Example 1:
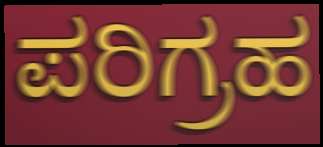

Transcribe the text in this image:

ಪರಿಗ್ರಹ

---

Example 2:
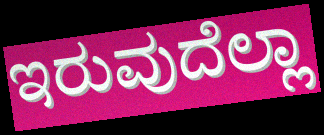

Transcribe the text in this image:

ಇರುವುದೆಲ್ಲಾ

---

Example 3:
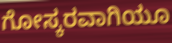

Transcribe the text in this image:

ಗೋಸ್ಕರವಾಗಿಯೂ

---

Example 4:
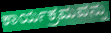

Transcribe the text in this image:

ಕಾರ್ಯಕ್ರಮವನ್ನು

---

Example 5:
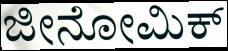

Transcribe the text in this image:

ಜೀನೋಮಿಕ್